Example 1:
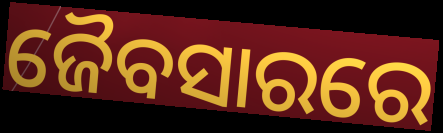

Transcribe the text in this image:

ଜୈବସାରରେ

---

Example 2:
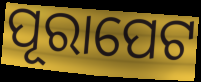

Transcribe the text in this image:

ପୂରାପେଟ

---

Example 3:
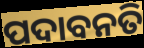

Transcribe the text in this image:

ପଦାବନତି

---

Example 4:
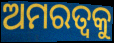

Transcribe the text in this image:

ଅମରତ୍ୱକୁ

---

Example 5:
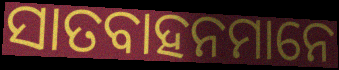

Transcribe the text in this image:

ସାତବାହନମାନେ